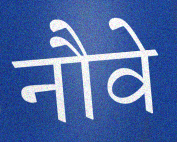
नौवे